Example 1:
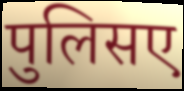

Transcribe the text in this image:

पुलिसए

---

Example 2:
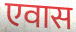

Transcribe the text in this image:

एवास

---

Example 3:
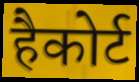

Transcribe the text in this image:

हैकोर्ट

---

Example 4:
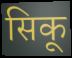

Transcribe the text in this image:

सिकू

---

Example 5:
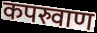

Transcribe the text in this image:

कपरुवाण